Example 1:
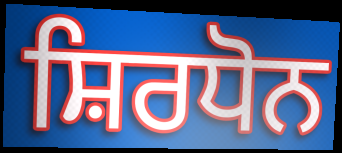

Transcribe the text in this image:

ਸ਼ਿਰਧੋਨ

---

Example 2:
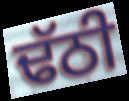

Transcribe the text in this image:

ਢੱਠੀ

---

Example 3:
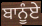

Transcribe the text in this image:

ਬਾਨੂੰਏ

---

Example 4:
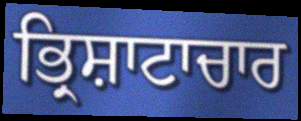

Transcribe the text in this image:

ਭ੍ਰਿਸ਼ਾਟਾਚਾਰ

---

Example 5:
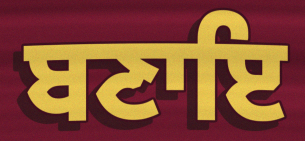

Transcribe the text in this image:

ਬਣਾਇ